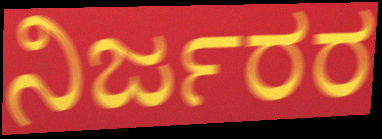
ನಿರ್ಜರರ